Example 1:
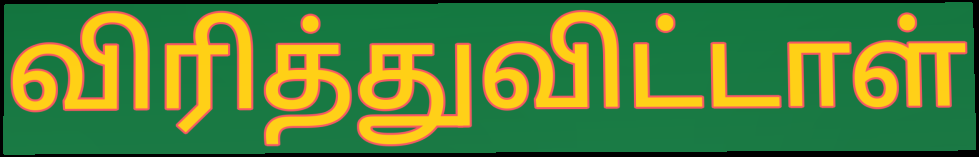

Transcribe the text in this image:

விரித்துவிட்டாள்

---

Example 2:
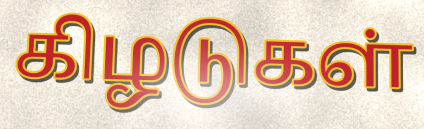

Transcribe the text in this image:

கிழடுகள்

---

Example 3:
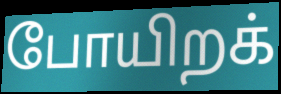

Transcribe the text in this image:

போயிறக்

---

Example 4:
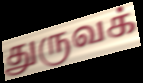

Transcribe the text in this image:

துருவக்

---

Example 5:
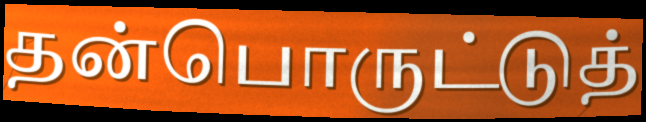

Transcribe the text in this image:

தன்பொருட்டுத்